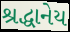
શ્રદ્ધાનેય